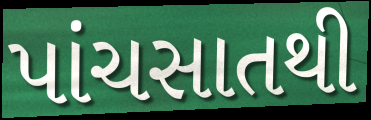
પાંચસાતથી